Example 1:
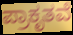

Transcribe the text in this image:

ಪ್ರಾಕೃತವೆ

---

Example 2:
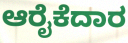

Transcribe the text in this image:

ಆರೈಕೆದಾರ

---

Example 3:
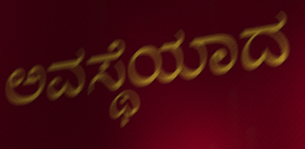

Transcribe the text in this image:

ಅವಸ್ಥೆಯಾದ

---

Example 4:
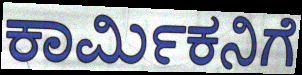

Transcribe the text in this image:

ಕಾರ್ಮಿಕನಿಗೆ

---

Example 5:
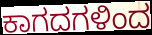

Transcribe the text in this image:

ಕಾಗದಗಳಿಂದ